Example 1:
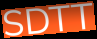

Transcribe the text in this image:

SDTT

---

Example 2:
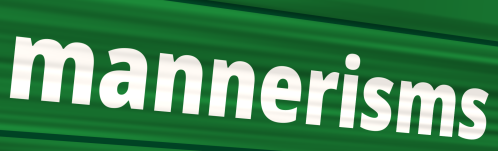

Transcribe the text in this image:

mannerisms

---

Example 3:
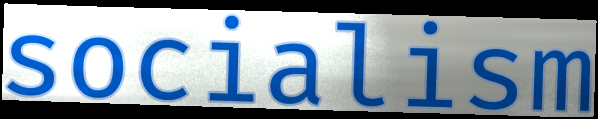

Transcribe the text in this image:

socialism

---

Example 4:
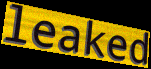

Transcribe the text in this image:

leaked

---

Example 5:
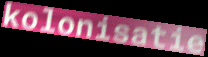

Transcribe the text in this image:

kolonisatie